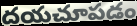
దయచూపడం